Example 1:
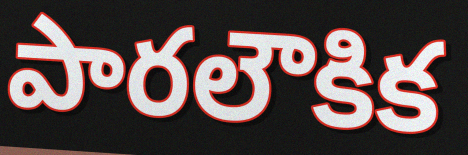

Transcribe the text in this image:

పారలౌకిక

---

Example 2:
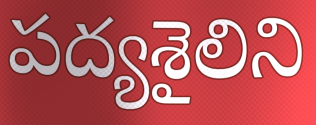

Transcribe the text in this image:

పద్యశైలిని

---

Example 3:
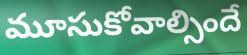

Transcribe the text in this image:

మూసుకోవాల్సిందే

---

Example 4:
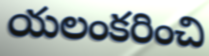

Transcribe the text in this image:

యలంకరించి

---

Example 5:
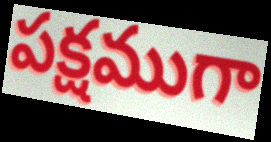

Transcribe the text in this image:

పక్షముగా